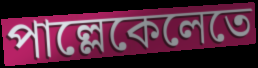
পাল্লেকেলেতে